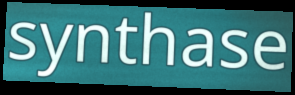
synthase